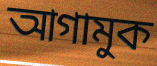
আগামুক